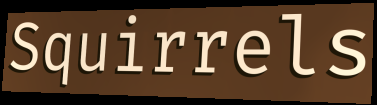
Squirrels